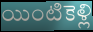
యింటికెళ్లి